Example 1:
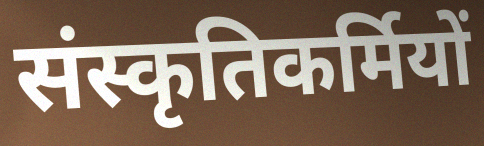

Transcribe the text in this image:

संस्कृतिकर्मियों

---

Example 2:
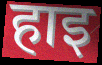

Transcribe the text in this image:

हाइ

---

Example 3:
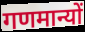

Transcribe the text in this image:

गणमान्यों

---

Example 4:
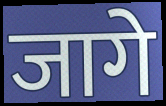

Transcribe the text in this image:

जागे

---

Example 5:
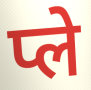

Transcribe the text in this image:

प्ले